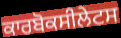
ਕਾਰਬੋਕਸੀਲੇਟਸ